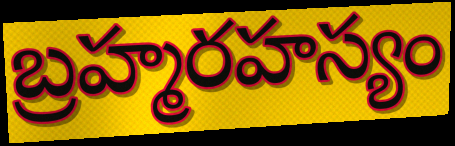
బ్రహ్మరహస్యం